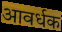
आवर्धक